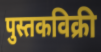
पुस्तकविक्री